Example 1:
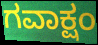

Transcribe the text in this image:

ಗವಾಕ್ಷಂ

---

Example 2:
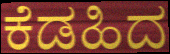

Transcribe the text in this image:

ಕೆಡಹಿದ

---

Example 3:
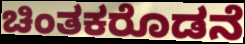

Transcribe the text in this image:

ಚಿಂತಕರೊಡನೆ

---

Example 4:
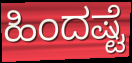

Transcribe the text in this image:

ಹಿಂದಷ್ಟೆ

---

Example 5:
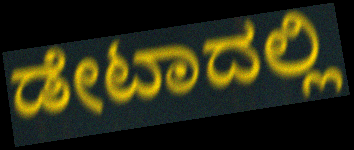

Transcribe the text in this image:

ಡೇಟಾದಲ್ಲಿ